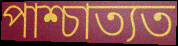
পাশ্চাত্যত